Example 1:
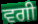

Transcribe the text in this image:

ਵਗੀ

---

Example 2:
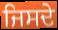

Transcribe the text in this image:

ਜਿਸਦੇ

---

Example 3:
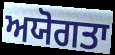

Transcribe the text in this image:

ਅਯੋਗਤਾ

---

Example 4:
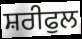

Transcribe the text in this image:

ਸ਼ਰੀਫੁਲ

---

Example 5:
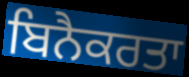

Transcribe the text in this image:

ਬਿਨੈਕਰਤਾ